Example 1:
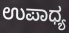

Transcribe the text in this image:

ಉಪಾಧ್ಯ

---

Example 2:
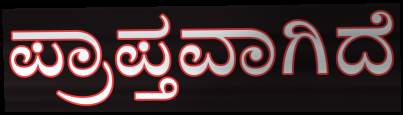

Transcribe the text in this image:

ಪ್ರಾಪ್ತವಾಗಿದೆ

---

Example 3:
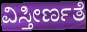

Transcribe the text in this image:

ವಿಸ್ತೀರ್ಣತೆ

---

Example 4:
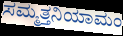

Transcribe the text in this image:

ಸಮ್ಮತ್ತನಿಯಾಮಂ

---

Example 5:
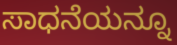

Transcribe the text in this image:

ಸಾಧನೆಯನ್ನೂ